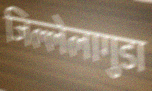
जिल्लेलागुडा